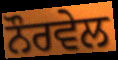
ਨੌਰਵੇਲ